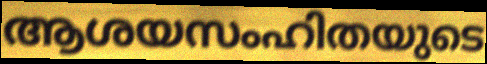
ആശയസംഹിതയുടെ